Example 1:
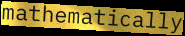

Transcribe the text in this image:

mathematically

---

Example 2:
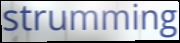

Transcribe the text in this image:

strumming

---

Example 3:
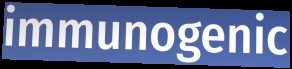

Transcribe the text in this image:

immunogenic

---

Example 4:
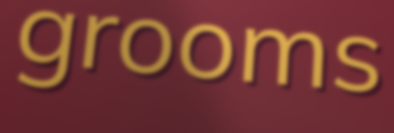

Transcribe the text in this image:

grooms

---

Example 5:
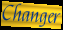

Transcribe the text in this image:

Changer